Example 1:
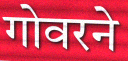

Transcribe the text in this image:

गोवरने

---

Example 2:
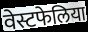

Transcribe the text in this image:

वेस्टफेलिया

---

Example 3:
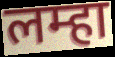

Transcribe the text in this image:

लम्हा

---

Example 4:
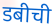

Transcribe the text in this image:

डबीची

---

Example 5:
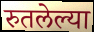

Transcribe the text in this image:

रुतलेल्या